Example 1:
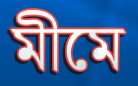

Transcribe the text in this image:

মীমে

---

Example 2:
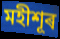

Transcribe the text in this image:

মহীশূৰ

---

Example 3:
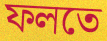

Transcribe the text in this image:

ফলতে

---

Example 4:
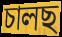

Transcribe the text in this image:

চালছ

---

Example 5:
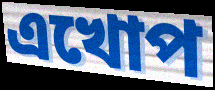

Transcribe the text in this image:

এখোপ